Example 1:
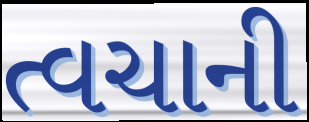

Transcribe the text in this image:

ત્વચાની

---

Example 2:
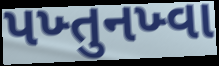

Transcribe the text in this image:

પખ્તુનખ્વા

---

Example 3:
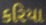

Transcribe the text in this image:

કરિયા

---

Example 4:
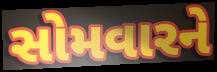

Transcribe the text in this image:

સોમવારને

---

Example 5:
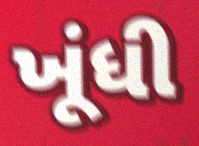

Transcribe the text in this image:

ખૂંધી